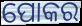
ପୋକର